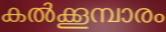
കൽക്കൂമ്പാരം